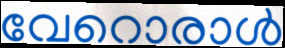
വേറൊരാൾ